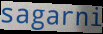
sagarni